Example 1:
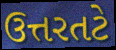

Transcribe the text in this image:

ઉત્તરતટે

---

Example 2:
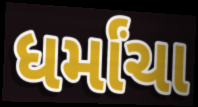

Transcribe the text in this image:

ધર્માંચા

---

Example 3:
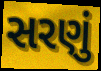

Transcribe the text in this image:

સરણું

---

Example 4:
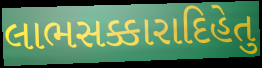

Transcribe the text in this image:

લાભસક્કારાદિહેતુ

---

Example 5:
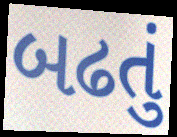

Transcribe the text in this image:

બઢતું